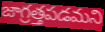
జాగ్రత్తపడమని